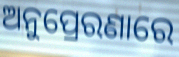
ଅନୁପ୍ରେରଣାରେ